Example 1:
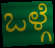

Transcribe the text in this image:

ಒಳ್ಗೆ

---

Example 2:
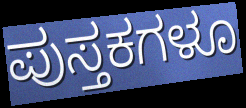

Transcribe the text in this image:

ಪುಸ್ತಕಗಳೂ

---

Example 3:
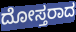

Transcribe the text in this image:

ದೋಸ್ತರಾದ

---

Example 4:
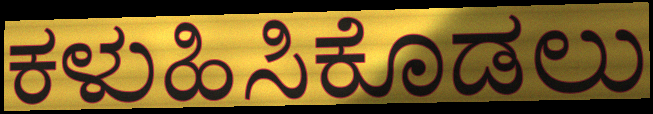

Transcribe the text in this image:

ಕಳುಹಿಸಿಕೊಡಲು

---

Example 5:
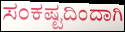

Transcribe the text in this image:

ಸಂಕಷ್ಟದಿಂದಾಗಿ